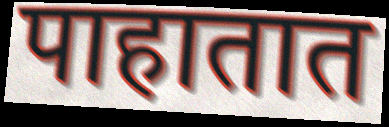
पाहातात